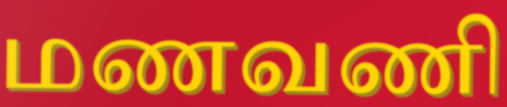
மணவணி